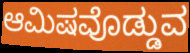
ಆಮಿಷವೊಡ್ಡುವ